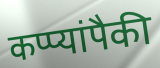
कप्प्यांपैकी